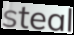
steal